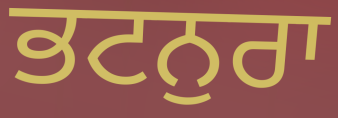
ਭਟਨੁਰਾ